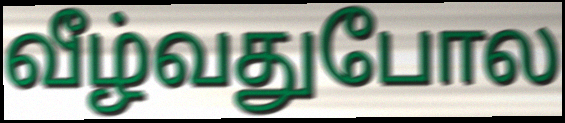
வீழ்வதுபோல